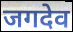
जगदेव